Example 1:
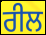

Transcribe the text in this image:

ਰੀਲ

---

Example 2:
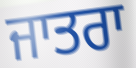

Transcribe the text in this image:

ਜਾਤਰਾ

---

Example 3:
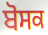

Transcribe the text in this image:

ਬੋਸਕ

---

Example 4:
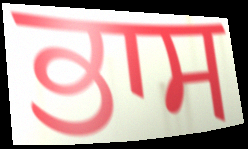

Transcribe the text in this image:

ਭਾਸ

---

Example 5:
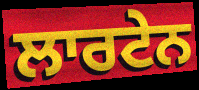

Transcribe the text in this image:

ਲਾਰਟੇਨ